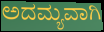
ಅದಮ್ಯವಾಗಿ